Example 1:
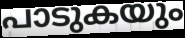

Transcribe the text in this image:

പാടുകയും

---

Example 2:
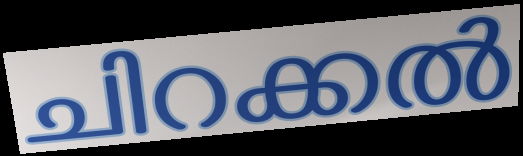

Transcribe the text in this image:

ചിറക്കൽ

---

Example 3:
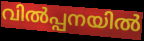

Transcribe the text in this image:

വിൽപ്പനയിൽ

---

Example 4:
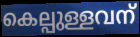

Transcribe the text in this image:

കെല്പുള്ളവന്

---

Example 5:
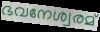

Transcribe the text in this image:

ഭവനേശ്വരമ്